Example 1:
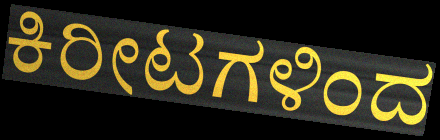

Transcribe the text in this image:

ಕಿರೀಟಗಳಿಂದ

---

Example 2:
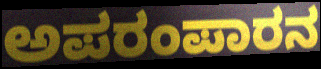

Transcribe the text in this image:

ಅಪರಂಪಾರನ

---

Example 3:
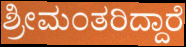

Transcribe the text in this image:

ಶ್ರೀಮಂತರಿದ್ದಾರೆ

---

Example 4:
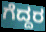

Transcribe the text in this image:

ಗೆದ್ದರ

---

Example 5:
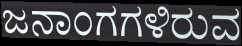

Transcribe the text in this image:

ಜನಾಂಗಗಳಿರುವ